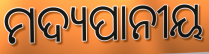
ମଦ୍ୟପାନୀୟ